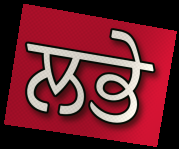
ਲਭੇ